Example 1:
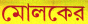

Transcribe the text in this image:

মোলকের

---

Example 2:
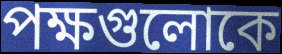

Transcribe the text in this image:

পক্ষগুলোকে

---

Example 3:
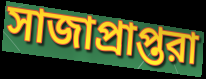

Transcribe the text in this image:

সাজাপ্রাপ্তরা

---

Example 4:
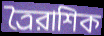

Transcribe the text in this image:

ত্রৈরাশিক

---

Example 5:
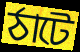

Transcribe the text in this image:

ঠাটে